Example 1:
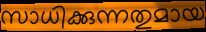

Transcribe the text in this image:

സാധിക്കുന്നതുമായ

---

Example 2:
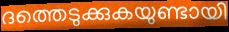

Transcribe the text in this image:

ദത്തെടുക്കുകയുണ്ടായി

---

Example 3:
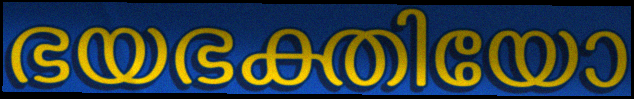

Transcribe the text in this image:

ഭയഭക്തിയോ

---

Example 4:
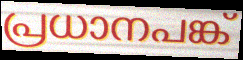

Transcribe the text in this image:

പ്രധാനപങ്ക്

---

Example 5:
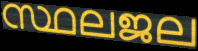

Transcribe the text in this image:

സ്ഥലജല